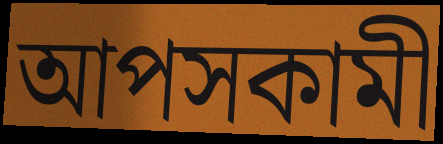
আপসকামী